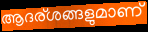
ആദര്ശങ്ങളുമാണ്